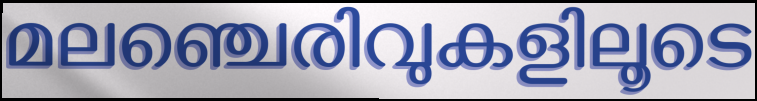
മലഞ്ചെരിവുകളിലൂടെ